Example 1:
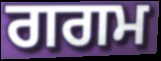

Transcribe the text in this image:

ਗਗਮ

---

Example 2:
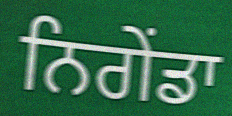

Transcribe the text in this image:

ਨਿਗੇਂਡਾ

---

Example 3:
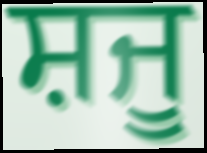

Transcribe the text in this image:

ਸ਼ਜੂ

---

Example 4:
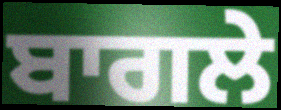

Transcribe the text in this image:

ਬਾਗਲੇ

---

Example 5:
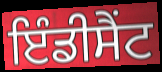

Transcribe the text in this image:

ਇੰਡੀਸੈਂਟ